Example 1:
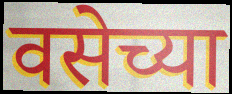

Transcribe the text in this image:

वसेच्या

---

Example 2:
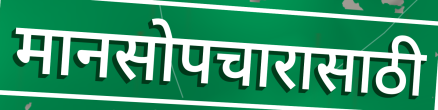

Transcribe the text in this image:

मानसोपचारासाठी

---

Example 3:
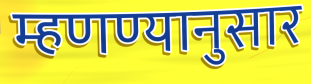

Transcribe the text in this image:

म्हणण्यानुसार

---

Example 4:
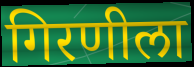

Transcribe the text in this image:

गिरणीला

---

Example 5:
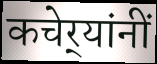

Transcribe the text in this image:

कचेर्यांनीं